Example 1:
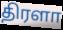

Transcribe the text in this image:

திரளா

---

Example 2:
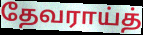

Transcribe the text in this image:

தேவராய்த்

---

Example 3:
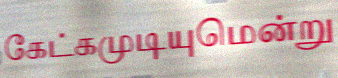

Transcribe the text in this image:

கேட்கமுடியுமென்று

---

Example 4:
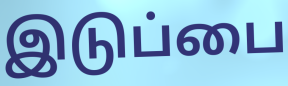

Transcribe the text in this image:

இடுப்பை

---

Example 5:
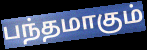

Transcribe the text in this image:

பந்தமாகும்